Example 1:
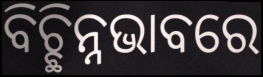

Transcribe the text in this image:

ବିଚ୍ଛିନ୍ନଭାବରେ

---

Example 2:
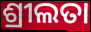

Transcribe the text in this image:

ଶ୍ରୀଲତା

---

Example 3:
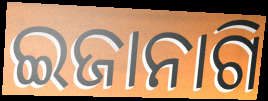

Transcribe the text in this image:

ଇଜାନାଗି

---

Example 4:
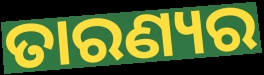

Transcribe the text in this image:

ତାରଣ୍ୟର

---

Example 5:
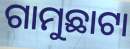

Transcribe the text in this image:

ଗାମୁଛାଟା